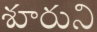
శూరుని